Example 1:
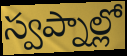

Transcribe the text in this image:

స్వప్నాల్లో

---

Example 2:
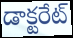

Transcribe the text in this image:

డాక్టరేట్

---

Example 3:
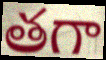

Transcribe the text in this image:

తగా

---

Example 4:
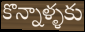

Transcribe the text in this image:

కొన్నాళ్ళకు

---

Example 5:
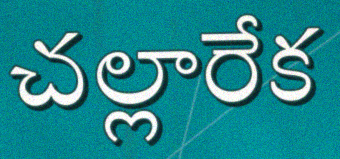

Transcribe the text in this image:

చల్లారేక